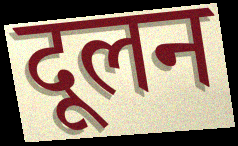
दूलन